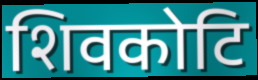
शिवकोटि